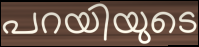
പറയിയുടെ